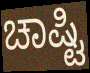
ಚಾಷ್ಟಿ